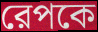
রেপকে